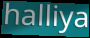
halliya